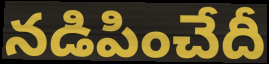
నడిపించేదీ